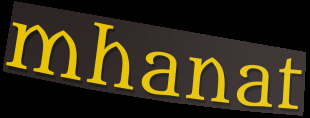
mhanat